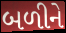
બળીને